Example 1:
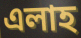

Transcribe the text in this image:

এলাহ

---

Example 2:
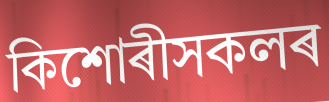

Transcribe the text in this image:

কিশোৰীসকলৰ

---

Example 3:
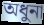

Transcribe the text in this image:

অধুনা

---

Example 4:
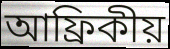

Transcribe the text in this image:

আফ্ৰিকীয়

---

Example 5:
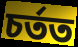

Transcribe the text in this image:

চৰ্তত